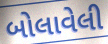
બોલાવેલી